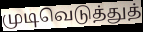
முடிவெடுத்துத்